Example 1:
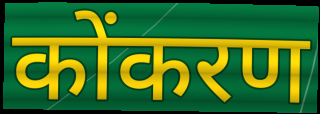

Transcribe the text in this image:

कोंकरण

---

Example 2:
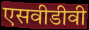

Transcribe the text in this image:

एसवीडीवी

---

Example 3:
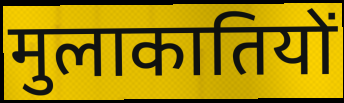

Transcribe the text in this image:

मुलाकातियों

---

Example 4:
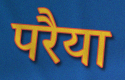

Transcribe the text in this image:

परैया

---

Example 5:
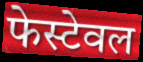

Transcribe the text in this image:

फेस्टेवल